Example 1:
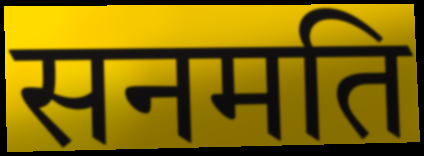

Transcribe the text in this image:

सनमति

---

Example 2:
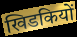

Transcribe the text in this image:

खिडकियों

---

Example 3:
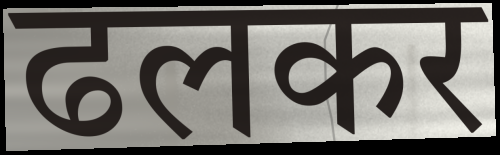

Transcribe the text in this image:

ढलकर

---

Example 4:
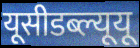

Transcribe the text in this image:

यूसीडब्ल्यूयू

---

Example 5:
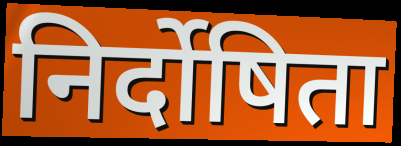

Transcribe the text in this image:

निर्दोषिता